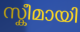
സ്കീമായി